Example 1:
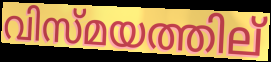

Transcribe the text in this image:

വിസ്മയത്തില്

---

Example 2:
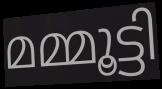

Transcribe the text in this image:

മമ്മൂട്ടി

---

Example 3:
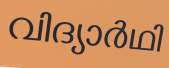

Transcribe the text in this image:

വിദ്യാർഥി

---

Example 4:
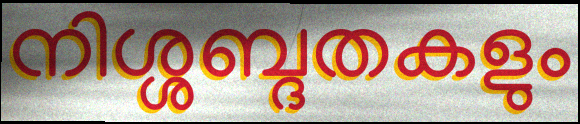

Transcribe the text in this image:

നിശ്ശബ്ദതകളും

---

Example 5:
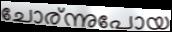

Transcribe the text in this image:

ചോര്ന്നുപോയ